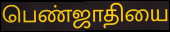
பெண்ஜாதியை